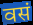
वसं